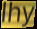
lhy